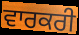
ਵਾਰਕਰੀ